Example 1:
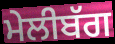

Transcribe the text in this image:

ਮੇਲੀਬੱਗ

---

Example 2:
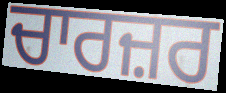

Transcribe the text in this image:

ਚਾਰਜ਼ਰ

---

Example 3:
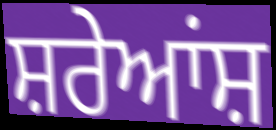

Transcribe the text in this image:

ਸ਼ਰੇਆਂਸ਼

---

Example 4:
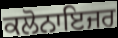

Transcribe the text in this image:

ਕਲੋਨਾਇਜਰ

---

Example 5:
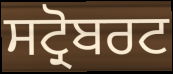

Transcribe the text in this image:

ਸਟ੍ਰੋਬਰਟ